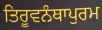
ਤਿਰੂਵਨੰਥਾਪੁਰਮ